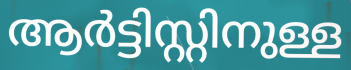
ആർട്ടിസ്റ്റിനുള്ള